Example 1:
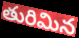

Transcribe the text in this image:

తురిమిన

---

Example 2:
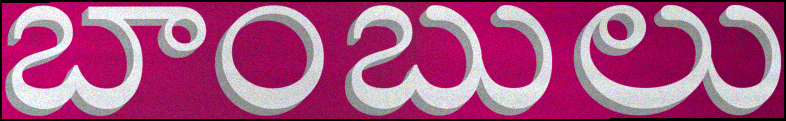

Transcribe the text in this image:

బాంబులు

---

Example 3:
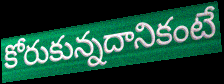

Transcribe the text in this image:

కోరుకున్నదానికంటే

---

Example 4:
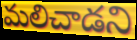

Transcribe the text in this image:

మలిచాడని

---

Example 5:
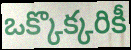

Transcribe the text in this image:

ఒక్కొక్కరికీ